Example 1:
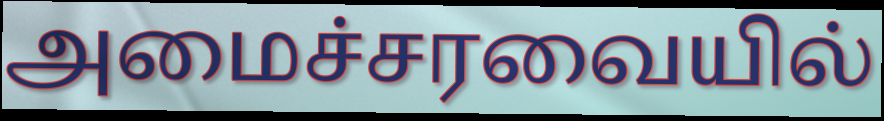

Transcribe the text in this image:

அமைச்சரவையில்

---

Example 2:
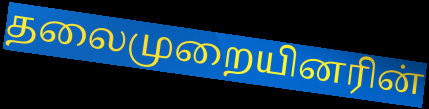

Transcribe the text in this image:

தலைமுறையினரின்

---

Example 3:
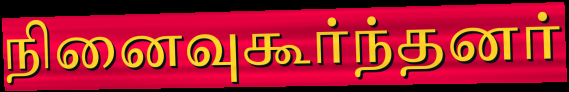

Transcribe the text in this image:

நினைவுகூர்ந்தனர்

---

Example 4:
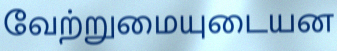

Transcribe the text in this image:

வேற்றுமையுடையன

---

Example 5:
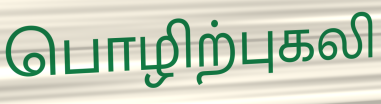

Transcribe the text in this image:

பொழிற்புகலி